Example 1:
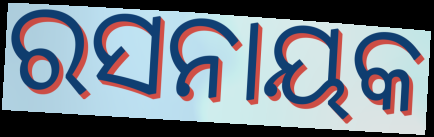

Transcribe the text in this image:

ରସନାୟକ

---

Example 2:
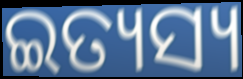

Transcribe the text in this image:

ଇତ୍ୟସ୍ୟ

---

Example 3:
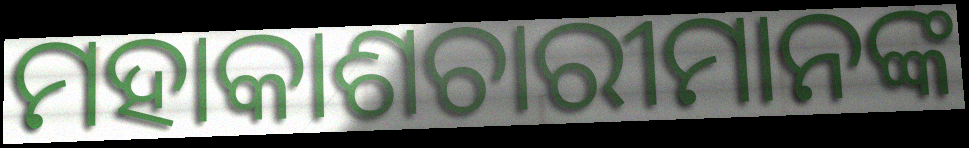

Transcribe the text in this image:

ମହାକାଶଚାରୀମାନଙ୍କ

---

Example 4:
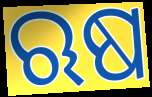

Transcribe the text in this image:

ଋଷ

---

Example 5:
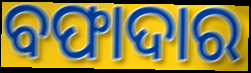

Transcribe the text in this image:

ବଫାଦାର